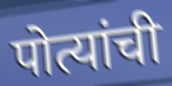
पोत्यांची